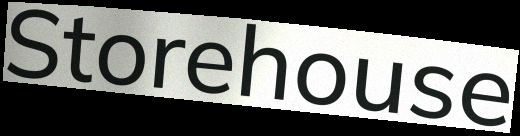
Storehouse